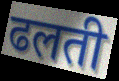
ढलती